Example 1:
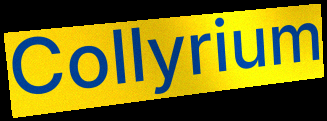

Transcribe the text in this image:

Collyrium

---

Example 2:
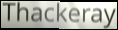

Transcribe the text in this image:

Thackeray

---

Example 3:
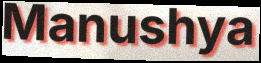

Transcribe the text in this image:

Manushya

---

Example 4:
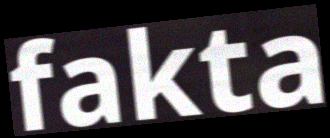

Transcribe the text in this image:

fakta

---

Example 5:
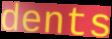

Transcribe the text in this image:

dents